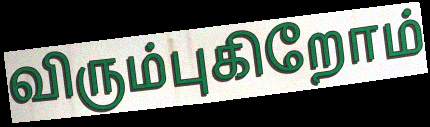
விரும்புகிறோம்